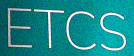
ETCS